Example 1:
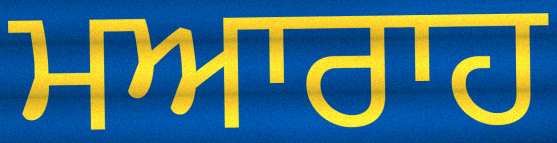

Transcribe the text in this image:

ਮਆਰਾਹ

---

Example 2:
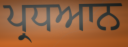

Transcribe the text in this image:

ਪ੍ਰਧਆਨ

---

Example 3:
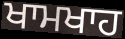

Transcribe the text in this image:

ਖਾਮਖਾਹ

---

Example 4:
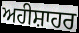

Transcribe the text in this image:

ਅਹੀਸ਼ਾਹਰ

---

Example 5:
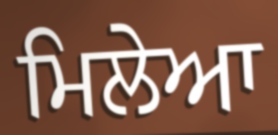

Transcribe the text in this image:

ਮਿਲੇਆ